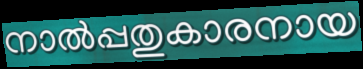
നാൽപ്പതുകാരനായ